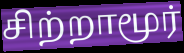
சிற்றாமூர்